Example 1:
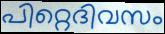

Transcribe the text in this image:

പിറ്റെദിവസം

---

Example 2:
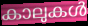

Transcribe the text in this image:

കാലുകൾ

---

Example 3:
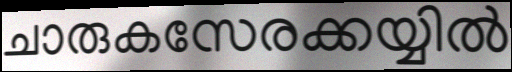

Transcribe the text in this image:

ചാരുകസേരക്കയ്യിൽ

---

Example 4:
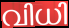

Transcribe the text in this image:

വിധി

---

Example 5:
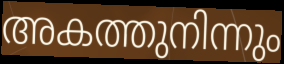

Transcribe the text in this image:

അകത്തുനിന്നും